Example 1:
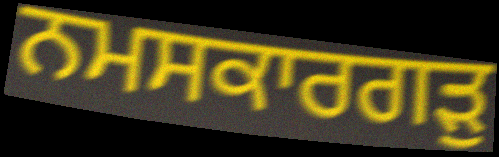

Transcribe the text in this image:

ਨਮਸਕਾਰਗੜੁ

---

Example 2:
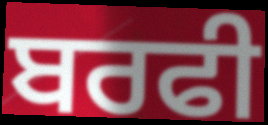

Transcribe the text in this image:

ਬਰਫੀ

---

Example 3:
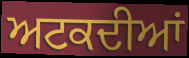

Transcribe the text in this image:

ਅਟਕਦੀਆਂ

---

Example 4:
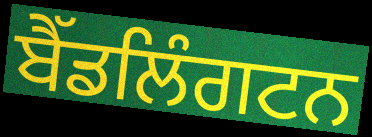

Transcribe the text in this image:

ਬੈੱਡਲਿੰਗਟਨ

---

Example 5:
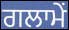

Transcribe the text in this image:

ਗਲਾਮੇਂ